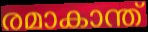
രമാകാന്ത്